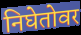
निघेतोवर